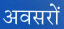
अवसरों